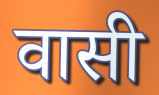
वासी